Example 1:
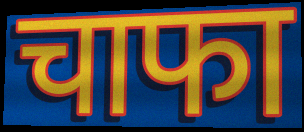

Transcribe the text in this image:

चाफा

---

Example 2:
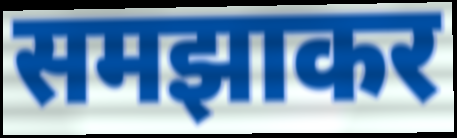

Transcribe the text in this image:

समझाकर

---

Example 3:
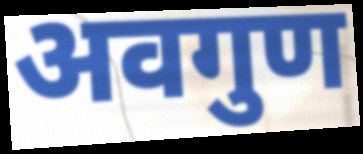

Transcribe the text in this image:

अवगुण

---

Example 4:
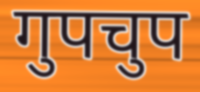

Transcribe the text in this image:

गुपचुप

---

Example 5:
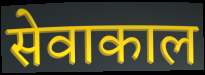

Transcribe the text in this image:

सेवाकाल